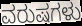
ವರುಷಗಳು